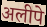
अलीपे